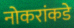
नोकरांकडे